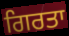
ਗਿਰਤਾ